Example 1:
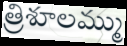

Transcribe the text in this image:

త్రిశూలమ్ము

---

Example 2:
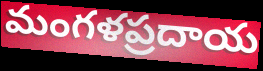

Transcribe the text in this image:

మంగళప్రదాయ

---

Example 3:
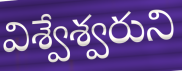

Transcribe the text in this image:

విశ్వేశ్వరుని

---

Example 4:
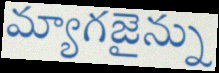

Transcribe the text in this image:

మ్యాగజైన్ను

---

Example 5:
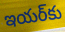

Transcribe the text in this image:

ఇయర్‌కు